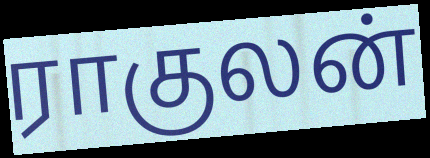
ராகுலன்